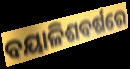
ବୟାଳିଶବର୍ଷରେ